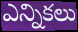
ఎన్నికలు